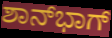
ಶಾನ್‍ಭಾಗ್